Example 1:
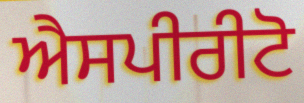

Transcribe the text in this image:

ਐਸਪੀਰੀਟੋ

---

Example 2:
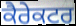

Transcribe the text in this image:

ਕੈਰੇਕਟਰ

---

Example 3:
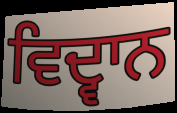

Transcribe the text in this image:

ਵਿਦ੍ਵਾਨ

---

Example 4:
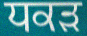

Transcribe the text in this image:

ਧਕੜ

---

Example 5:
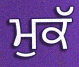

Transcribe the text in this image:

ਮੁਕੱ